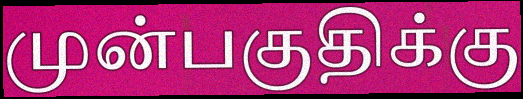
முன்பகுதிக்கு